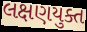
લક્ષણયુક્ત